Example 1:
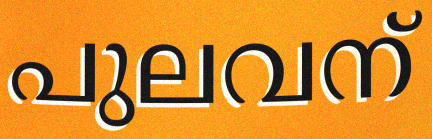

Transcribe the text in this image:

പുലവന്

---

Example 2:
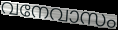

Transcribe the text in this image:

വനേവാസം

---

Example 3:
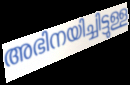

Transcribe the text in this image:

അഭിനയിച്ചിട്ടുള്ള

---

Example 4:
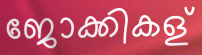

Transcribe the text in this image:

ജോക്കികള്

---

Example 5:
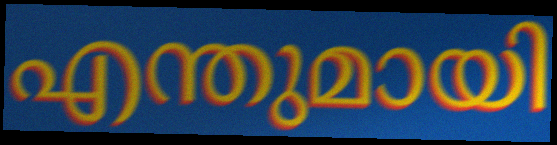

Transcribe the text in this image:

എന്തുമായി